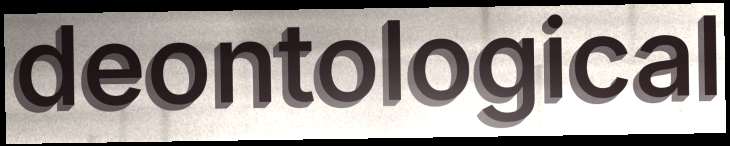
deontological